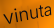
vinuta